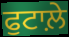
ਫੁਟਾਲ਼ੇ